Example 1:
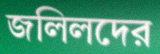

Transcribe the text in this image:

জলিলদের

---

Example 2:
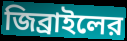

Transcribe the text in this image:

জিব্রাইলের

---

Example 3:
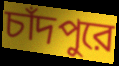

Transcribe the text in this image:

চাঁদপুরে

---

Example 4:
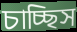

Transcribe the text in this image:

চাচ্ছিস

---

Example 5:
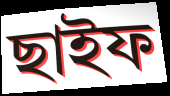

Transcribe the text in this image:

ছাইফ